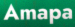
Amapa